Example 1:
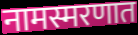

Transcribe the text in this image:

नामस्मरणात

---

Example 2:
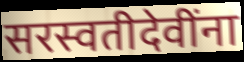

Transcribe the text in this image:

सरस्वतीदेवींना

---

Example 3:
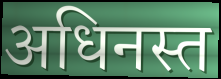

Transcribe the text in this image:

अधिनस्त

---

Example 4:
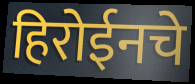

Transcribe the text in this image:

हिरोईनचे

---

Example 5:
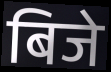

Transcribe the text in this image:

बिजे